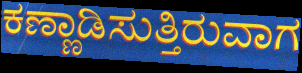
ಕಣ್ಣಾಡಿಸುತ್ತಿರುವಾಗ